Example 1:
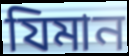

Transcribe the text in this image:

যিমান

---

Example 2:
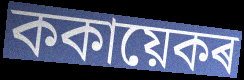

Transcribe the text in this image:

ককায়েকৰ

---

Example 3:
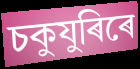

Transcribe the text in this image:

চকুযুৰিৰে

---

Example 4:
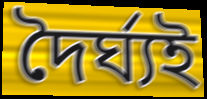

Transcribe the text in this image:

দৈৰ্ঘ্যই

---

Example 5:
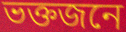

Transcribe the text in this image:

ভক্তজনে